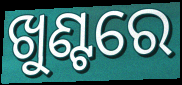
ଖୁଣ୍ଟରେ